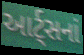
આર્ટ્સનાં